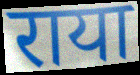
राया